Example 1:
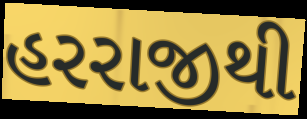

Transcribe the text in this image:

હરરાજીથી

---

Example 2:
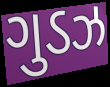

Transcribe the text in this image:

ગુડઝ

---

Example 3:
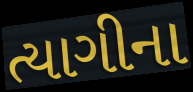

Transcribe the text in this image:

ત્યાગીના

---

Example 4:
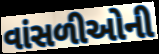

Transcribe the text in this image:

વાંસળીઓની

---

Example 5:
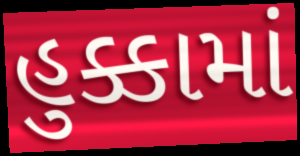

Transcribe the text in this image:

હુક્કામાં